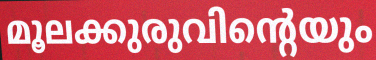
മൂലക്കുരുവിന്റെയും